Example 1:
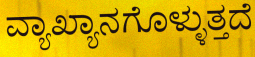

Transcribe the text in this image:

ವ್ಯಾಖ್ಯಾನಗೊಳ್ಳುತ್ತದೆ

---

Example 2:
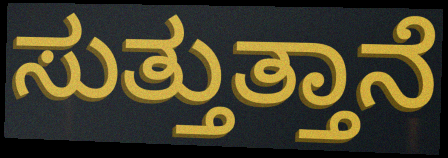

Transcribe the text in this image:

ಸುತ್ತುತ್ತಾನೆ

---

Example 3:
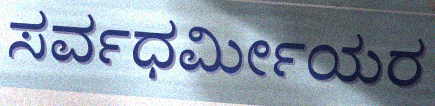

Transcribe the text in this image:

ಸರ್ವಧರ್ಮೀಯರ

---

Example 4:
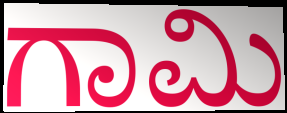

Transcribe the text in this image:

ಗಾಮಿ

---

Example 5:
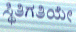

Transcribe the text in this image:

ಸ್ಥಿತಿಗತಿಯೇ